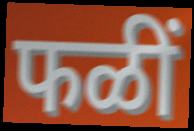
फळीं